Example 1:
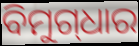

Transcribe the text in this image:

ବିମୁଗ୍‌ଧାର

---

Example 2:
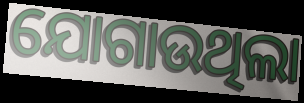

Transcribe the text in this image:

ଯୋଗାଉଥିଲା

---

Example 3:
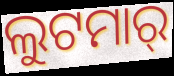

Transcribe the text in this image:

ଲୁଟମାର୍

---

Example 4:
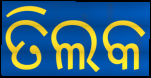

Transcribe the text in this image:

ତିଲକ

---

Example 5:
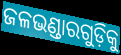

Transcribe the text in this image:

ଜଳଭଣ୍ଡାରଗୁଡ଼ିକୁ